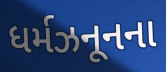
ધર્મઝનૂનના